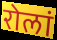
रोलां